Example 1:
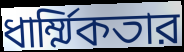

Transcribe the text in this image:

ধার্ম্মিকতার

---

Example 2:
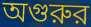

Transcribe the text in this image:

অগুরুর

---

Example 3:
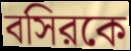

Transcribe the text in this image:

বসিরকে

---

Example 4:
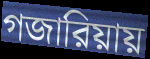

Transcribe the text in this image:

গজারিয়ায়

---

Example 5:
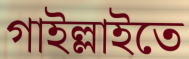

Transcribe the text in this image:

গাইল্লাইতে